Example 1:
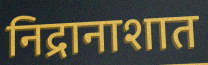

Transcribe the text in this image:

निद्रानाशात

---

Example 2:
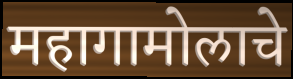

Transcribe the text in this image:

महागामोलाचे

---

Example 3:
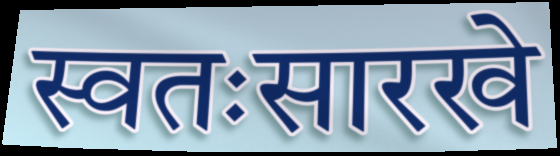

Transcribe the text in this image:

स्वतःसारखे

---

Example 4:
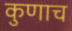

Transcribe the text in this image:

कुणाच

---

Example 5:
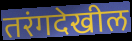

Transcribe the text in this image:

तरंगदेखील